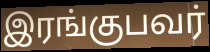
இரங்குபவர்